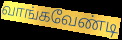
வாங்கவேண்டி